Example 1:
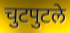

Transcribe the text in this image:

चुटपुटले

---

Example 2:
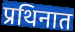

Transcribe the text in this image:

प्रथिनात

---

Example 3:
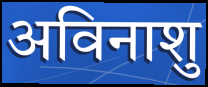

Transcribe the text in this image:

अविनाशु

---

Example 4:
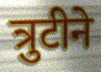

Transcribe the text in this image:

त्रुटीने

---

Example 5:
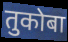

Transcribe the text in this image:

तुकोबा